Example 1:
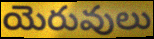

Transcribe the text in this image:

యెరువులు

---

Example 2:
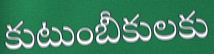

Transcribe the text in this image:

కుటుంబీకులకు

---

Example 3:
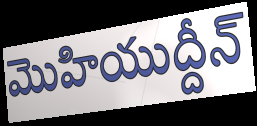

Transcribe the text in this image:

మొహియుద్దీన్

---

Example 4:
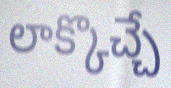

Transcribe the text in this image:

లాక్కొచ్చే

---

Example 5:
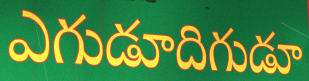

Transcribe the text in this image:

ఎగుడూదిగుడూ